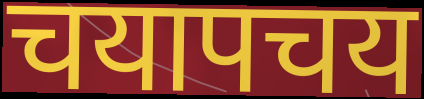
चयापचय